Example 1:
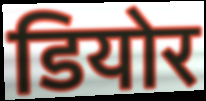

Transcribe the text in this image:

डियोर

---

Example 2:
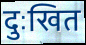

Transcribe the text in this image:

दुःखित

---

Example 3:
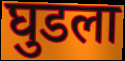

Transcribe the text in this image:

घुडला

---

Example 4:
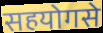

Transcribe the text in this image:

सहयोगसे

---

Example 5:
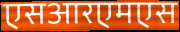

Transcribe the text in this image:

एसआरएमएस